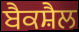
ਬੈਕਸ਼ੈਲ